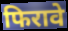
फिरावे